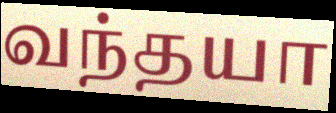
வந்தயா